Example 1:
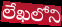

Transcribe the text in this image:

లేఖలోని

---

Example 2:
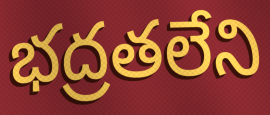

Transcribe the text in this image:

భద్రతలేని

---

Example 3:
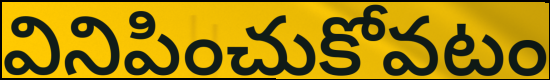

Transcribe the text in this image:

వినిపించుకోవటం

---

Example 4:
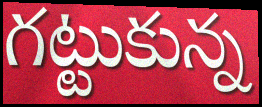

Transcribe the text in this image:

గట్టుకున్న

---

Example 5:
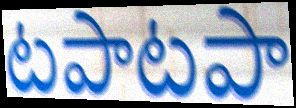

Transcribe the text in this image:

టపాటపా